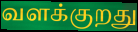
வளக்குறது